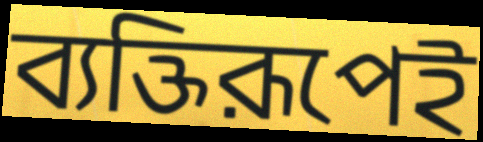
ব্যক্তিরূপেই